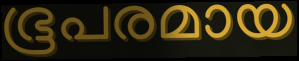
ഭൂപരമായ